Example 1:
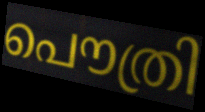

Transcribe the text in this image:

പൌത്രി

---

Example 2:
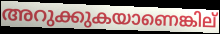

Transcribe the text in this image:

അറുക്കുകയാണെങ്കില്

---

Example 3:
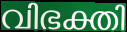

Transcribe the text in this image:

വിഭക്തി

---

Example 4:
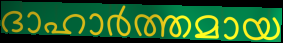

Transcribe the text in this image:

ദാഹാർത്തമായ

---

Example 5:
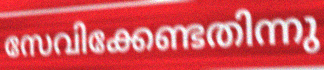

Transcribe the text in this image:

സേവിക്കേണ്ടതിന്നു